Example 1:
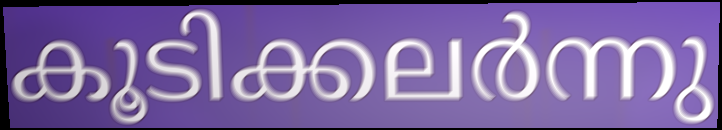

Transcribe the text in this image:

കൂടിക്കലർന്നു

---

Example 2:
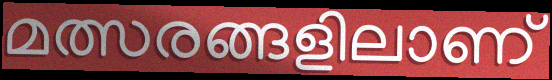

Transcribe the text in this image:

മത്സരങ്ങളിലാണ്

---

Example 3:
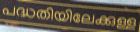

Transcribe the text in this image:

പദ്ധതിയിലേക്കുള്ള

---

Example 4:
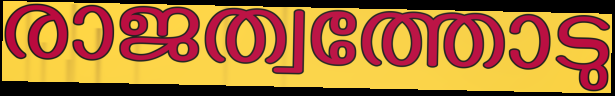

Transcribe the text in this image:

രാജത്വത്തോടു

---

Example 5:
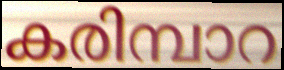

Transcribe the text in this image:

കരിമ്പാറ